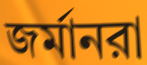
জর্মানরা